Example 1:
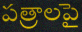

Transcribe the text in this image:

పత్రాలపై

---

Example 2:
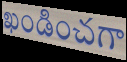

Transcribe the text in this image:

ఖండించగా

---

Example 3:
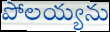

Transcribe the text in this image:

పోలయ్యను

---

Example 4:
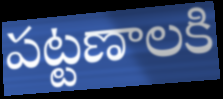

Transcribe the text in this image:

పట్టణాలకి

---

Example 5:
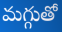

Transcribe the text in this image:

మగ్గుతో